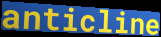
anticline